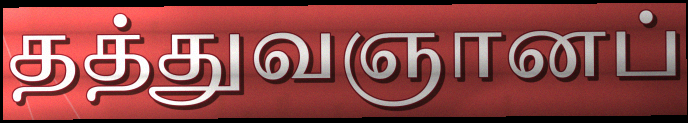
தத்துவஞானப்